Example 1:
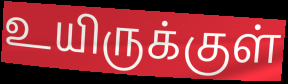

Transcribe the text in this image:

உயிருக்குள்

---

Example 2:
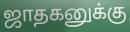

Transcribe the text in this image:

ஜாதகனுக்கு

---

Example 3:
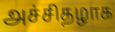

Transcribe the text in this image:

அச்சிதழாக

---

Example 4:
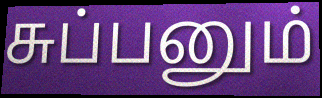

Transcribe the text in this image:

சுப்பனும்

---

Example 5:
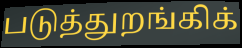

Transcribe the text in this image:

படுத்துறங்கிக்